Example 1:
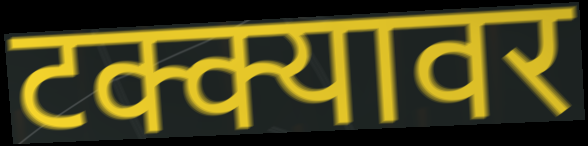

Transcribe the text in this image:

टक्क्यावर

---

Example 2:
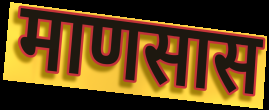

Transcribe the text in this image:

माणसास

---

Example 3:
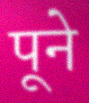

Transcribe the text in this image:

पूने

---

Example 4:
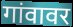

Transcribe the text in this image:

गांवावर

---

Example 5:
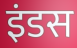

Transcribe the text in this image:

इंडस